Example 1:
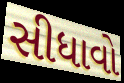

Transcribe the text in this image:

સીધાવો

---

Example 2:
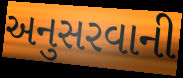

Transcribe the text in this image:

અનુસરવાની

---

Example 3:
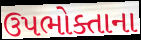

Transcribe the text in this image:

ઉપભોક્તાના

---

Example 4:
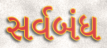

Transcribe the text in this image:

સર્વબંધ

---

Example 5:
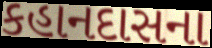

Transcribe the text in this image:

કહાનદાસના